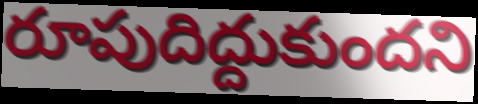
రూపుదిద్దుకుందని